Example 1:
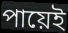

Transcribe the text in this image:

পায়েই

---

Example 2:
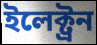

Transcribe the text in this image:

ইলেক্ট্ৰন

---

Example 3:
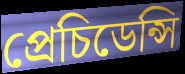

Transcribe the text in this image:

প্ৰেচিডেন্সি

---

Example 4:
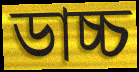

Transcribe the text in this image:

ডাচ্চ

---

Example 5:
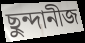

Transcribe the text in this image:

ছুন্দানীজ